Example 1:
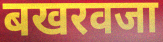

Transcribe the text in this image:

बखरवजा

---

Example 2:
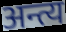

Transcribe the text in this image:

अन्त्य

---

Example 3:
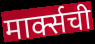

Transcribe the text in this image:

मार्क्सची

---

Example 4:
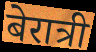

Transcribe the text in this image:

बेरात्री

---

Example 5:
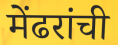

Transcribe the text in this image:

मेंढरांची